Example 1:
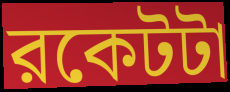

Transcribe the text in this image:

রকেটটা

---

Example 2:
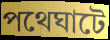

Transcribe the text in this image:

পথেঘাটে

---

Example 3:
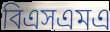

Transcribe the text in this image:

বিএসএমএ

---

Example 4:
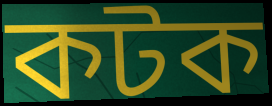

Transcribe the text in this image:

কটক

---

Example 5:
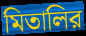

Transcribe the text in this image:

মিতালির